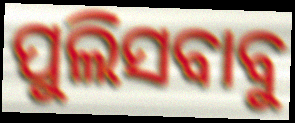
ପୁଲିସବାବୁ